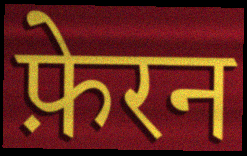
फ़ेरन